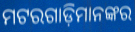
ମଟରଗାଡ଼ିମାନଙ୍କର